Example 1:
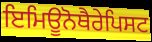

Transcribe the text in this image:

ਇਮਿਊਨੋਥੈਰੇਪਿਸਟ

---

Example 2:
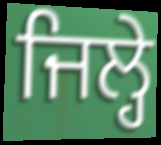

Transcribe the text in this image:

ਜਿਲ੍ਹੇ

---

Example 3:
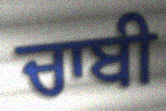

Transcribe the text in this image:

ਚਾਬੀ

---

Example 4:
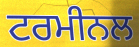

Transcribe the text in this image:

ਟਰਮੀਨਲ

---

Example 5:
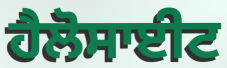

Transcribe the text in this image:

ਹੈਲੋਸਾਈਟ